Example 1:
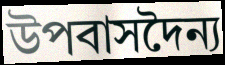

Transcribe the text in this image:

উপবাসদৈন্য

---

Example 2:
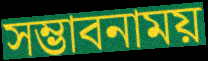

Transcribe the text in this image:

সম্ভাবনাময়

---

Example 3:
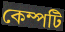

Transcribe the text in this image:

কেম্পটি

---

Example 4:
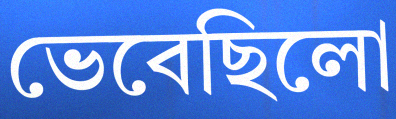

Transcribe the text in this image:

ভেবেছিলো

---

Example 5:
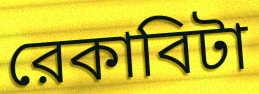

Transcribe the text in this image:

রেকাবিটা